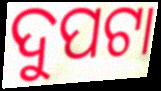
ଦୁପଟା